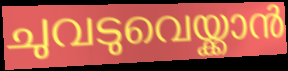
ചുവടുവെയ്ക്കാൻ